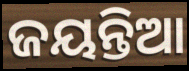
ଜୟନ୍ତିଆ